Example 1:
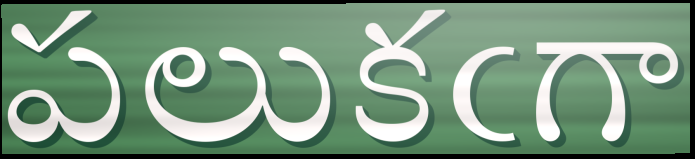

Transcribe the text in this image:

పలుకఁగా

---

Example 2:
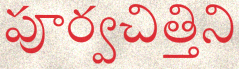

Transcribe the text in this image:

పూర్వచిత్తిని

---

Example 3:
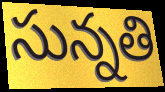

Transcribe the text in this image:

సున్నతి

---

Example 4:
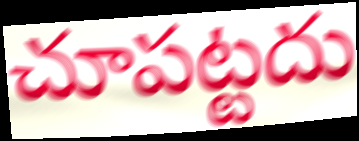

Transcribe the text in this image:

చూపట్టదు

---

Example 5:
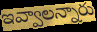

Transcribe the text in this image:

ఇవ్వాలన్నారు